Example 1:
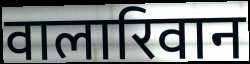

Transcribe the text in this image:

वालारिवान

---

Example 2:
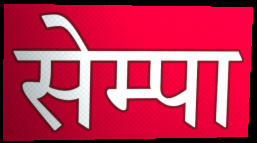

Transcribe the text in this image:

सेम्पा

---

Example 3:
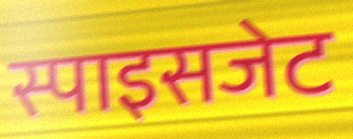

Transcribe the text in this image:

स्‍पाइसजेट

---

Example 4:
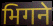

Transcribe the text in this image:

भिगने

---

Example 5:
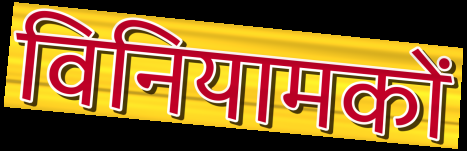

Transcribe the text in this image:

विनियामकों